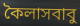
কৈলাসবাবু